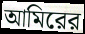
আমিরের